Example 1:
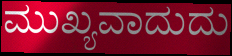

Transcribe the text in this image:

ಮುಖ್ಯವಾದುದು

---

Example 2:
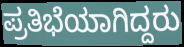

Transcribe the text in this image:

ಪ್ರತಿಭೆಯಾಗಿದ್ದರು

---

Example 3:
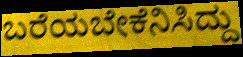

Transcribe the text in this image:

ಬರೆಯಬೇಕೆನಿಸಿದ್ದು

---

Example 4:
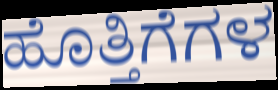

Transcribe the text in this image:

ಹೊತ್ತಿಗೆಗಳ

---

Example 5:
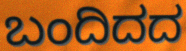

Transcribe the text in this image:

ಬಂದಿದದ